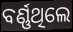
ବର୍ଣ୍ଣଥିଲେ